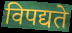
विपद्यते